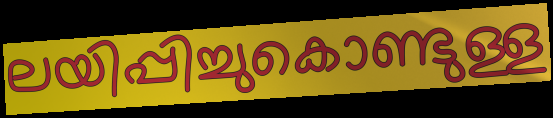
ലയിപ്പിച്ചുകൊണ്ടുള്ള